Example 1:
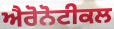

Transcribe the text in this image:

ਐਰੋਨੋਟੀਕਲ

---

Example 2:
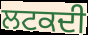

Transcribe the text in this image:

ਲਟਕਦੀ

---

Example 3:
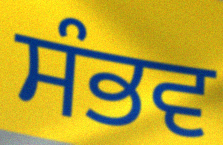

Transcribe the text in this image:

ਸੰਭਵ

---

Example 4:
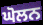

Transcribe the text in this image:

ਘੋਲਨ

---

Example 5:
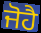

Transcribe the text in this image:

ਜੋਹੈ